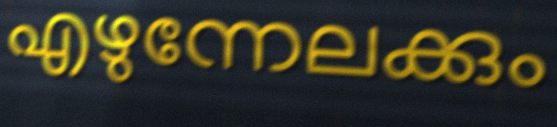
എഴുന്നേലക്കും